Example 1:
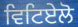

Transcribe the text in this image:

ਵਿਟਿਏਲੋ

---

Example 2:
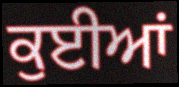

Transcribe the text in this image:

ਕੁਈਆਂ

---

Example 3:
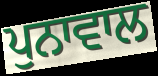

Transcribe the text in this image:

ਪੁਨਾਵਾਲ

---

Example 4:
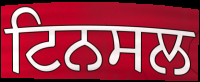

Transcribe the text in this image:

ਟਿਨਸਲ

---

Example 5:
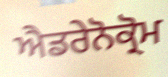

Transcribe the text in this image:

ਐਡਰੇਨੋਕ੍ਰੋਮ